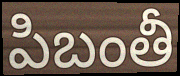
పిబంతీ